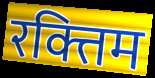
रक्तिम